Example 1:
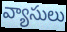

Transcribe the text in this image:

వ్యాసులు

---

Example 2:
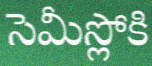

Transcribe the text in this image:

సెమీస్లోకి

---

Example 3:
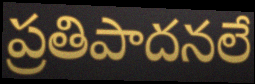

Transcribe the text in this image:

ప్రతిపాదనలే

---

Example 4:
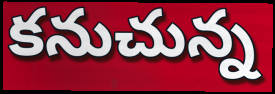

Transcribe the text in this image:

కనుచున్న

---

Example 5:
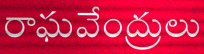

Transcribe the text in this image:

రాఘవేంద్రులు